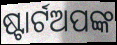
ଷ୍ଟାର୍ଟଅପଙ୍କ